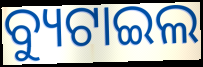
ବ୍ୟୁଟାଇଲ